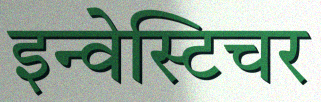
इन्वेस्टिचर